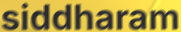
siddharam